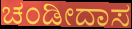
ಚಂಡೀದಾಸ